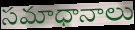
సమాధానాలు